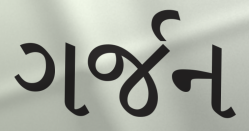
ગર્જન